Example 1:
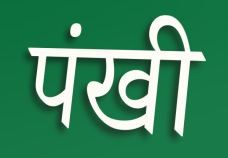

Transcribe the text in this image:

पंखी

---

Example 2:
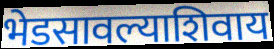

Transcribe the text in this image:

भेडसावल्याशिवाय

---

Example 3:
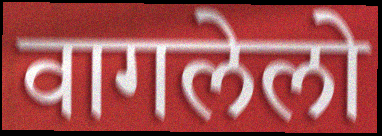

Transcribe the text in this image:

वागलेलो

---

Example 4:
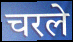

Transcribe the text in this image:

चरले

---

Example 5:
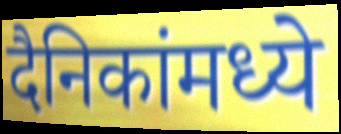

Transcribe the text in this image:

दैनिकांमध्ये